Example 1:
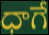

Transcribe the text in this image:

ధాగే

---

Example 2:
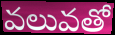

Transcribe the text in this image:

వలువతో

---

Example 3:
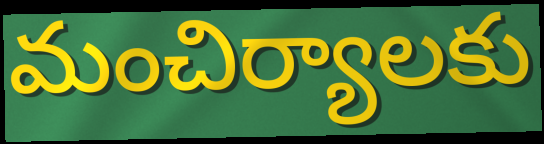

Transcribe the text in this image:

మంచిర్యాలకు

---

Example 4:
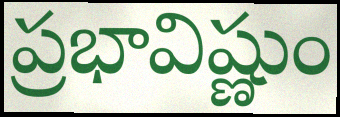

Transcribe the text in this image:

ప్రభావిష్ణుం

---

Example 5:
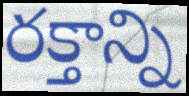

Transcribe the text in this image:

రక్తాన్ని